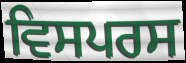
ਵਿਸਪਰਸ